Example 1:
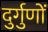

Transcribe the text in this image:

दुर्गुणों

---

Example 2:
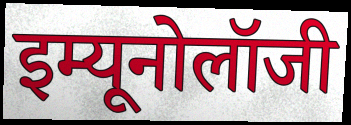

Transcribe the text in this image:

इम्यूनोलॉजी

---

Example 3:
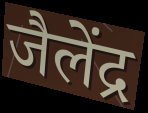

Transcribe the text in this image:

जैलेंद्र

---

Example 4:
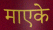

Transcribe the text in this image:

माएके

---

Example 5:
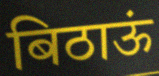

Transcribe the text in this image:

बिठाऊं